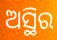
ଅସ୍ଥିର